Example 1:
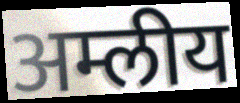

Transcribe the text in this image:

अम्‍लीय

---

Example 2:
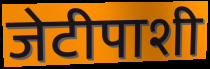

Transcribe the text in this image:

जेटीपाशी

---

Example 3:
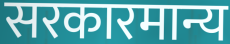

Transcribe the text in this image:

सरकारमान्य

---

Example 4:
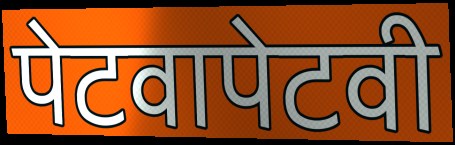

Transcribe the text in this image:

पेटवापेटवी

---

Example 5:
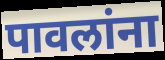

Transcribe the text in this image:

पावलांना